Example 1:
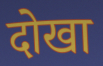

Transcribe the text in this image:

दोखा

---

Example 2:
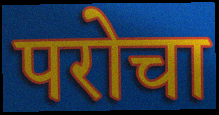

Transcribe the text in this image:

परोचा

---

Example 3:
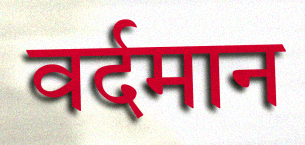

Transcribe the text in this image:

वर्दमान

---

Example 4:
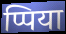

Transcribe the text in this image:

प्पिया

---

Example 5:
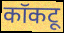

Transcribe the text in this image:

कॉकटू